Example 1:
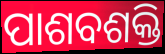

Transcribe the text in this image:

ପାଶବଶକ୍ତି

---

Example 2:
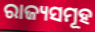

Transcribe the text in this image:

ରାଜ୍ୟସମୂହ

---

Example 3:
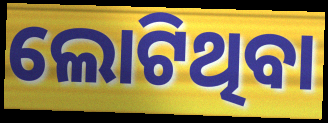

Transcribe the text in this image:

ଲୋଟିଥିବା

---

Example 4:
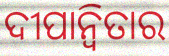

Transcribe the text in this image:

ଦୀପାନ୍ୱିତାର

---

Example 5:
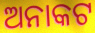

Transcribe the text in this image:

ଅନାକଟ